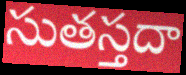
సుతస్తదా